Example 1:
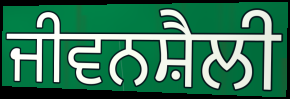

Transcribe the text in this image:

ਜੀਵਨਸ਼ੈਲੀ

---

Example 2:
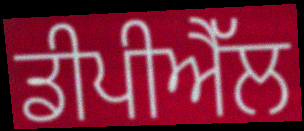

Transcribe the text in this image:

ਡੀਪੀਐੱਲ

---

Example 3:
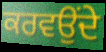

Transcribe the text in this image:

ਕਰਵਉਂਦੇ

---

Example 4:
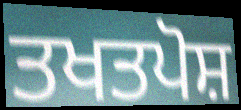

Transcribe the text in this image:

ਤਖਤਪੋਸ਼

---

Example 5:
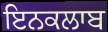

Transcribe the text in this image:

ਇਨਕਲਾਬ